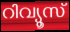
റിവ്യൂസ്